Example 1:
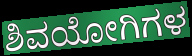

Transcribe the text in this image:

ಶಿವಯೋಗಿಗಳ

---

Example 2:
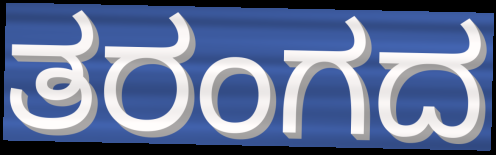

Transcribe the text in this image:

ತರಂಗದ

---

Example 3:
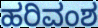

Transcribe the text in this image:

ಹರಿವಂಶ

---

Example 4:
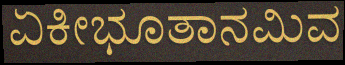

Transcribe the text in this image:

ಏಕೀಭೂತಾನಮಿವ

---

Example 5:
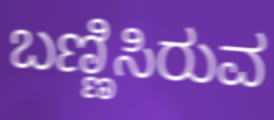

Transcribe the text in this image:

ಬಣ್ಣಿಸಿರುವ